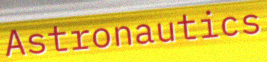
Astronautics